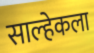
साल्हेकला